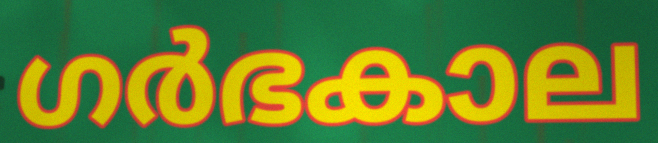
ഗർഭകാല